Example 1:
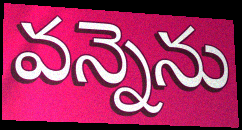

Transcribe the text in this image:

వన్నెను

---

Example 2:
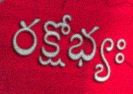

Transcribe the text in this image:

రక్షోభ్యః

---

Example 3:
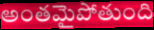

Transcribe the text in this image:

అంతమైపోతుంది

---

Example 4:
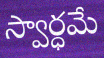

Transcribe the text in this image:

స్వార్ధమే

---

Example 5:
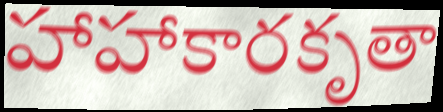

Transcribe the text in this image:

హాహాకారకృతా